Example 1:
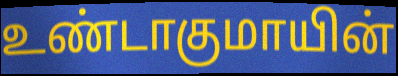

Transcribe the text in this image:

உண்டாகுமாயின்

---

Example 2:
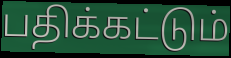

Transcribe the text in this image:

பதிக்கட்டும்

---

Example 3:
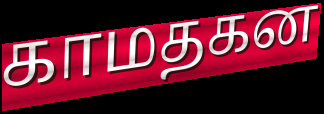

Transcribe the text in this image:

காமதகன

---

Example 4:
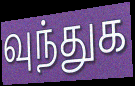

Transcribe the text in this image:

வுந்துக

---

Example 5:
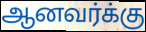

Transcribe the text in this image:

ஆனவர்க்கு